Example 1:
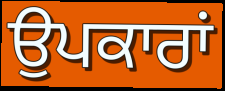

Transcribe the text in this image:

ਉਪਕਾਰਾਂ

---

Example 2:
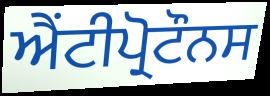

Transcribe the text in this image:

ਐਂਟੀਪ੍ਰੋਟੌਨਸ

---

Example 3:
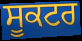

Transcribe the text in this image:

ਸੂਕਟਰ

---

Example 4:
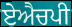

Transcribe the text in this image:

ਏਐਚਪੀ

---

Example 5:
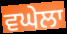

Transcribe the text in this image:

ਵਘੇਲਾ